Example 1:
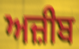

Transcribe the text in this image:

ਅਜ਼ੀਬ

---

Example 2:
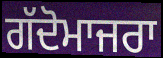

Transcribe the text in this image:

ਗੱਦੋਮਾਜਰਾ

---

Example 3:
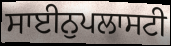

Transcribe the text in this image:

ਸਾਈਨੁਪਲਾਸਟੀ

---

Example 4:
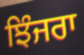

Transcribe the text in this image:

ਝਿੰਜਰਾ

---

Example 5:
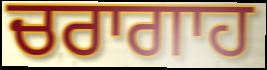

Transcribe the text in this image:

ਚਰਾਗਾਹ